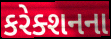
કરેક્શનના